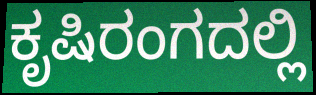
ಕೃಷಿರಂಗದಲ್ಲಿ